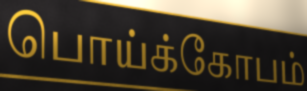
பொய்க்கோபம்